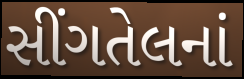
સીંગતેલનાં